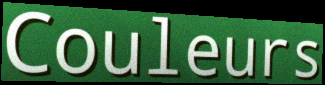
Couleurs